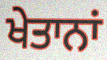
ਖੇਤਾਨਾਂ